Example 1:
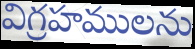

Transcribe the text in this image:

విగ్రహములను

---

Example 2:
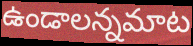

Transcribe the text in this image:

ఉండాలన్నమాట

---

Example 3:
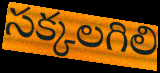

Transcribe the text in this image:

సక్కలగిలి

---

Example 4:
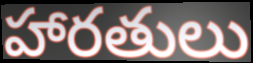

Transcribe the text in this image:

హారతులు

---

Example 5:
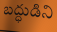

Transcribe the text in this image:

బద్ధుడిని